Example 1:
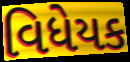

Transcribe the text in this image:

વિધેયક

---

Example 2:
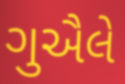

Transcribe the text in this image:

ગુઐલે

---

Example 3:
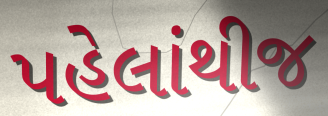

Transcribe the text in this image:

પહેલાંથીજ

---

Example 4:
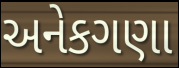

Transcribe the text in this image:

અનેકગણા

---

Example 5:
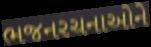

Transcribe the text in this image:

ભજનરચનાઓને